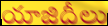
యాజిదీలు